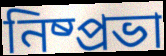
নিষ্প্রভা